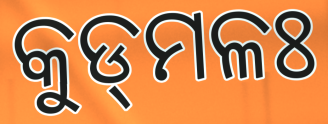
କୁଡ୍‌ମଳଃ